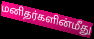
மனிதர்களின்மீது